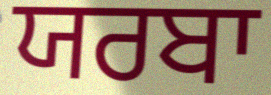
ਯਰਬਾ